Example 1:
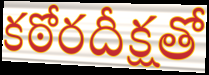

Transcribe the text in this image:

కఠోరదీక్షతో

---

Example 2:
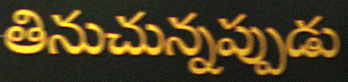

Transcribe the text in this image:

తినుచున్నప్పుడు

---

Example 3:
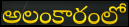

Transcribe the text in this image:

అలంకారంలో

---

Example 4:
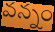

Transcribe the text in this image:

వన్నం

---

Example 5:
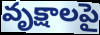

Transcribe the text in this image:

వృక్షాలపై